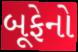
બૂફેનો